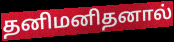
தனிமனிதனால்